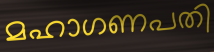
മഹാഗണപതി